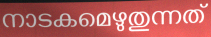
നാടകമെഴുതുന്നത്